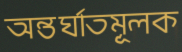
অন্তর্ঘাতমূলক